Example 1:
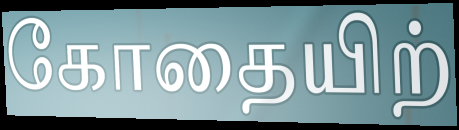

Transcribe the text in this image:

கோதையிற்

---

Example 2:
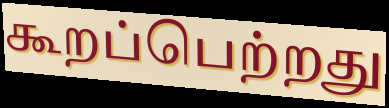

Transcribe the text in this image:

கூறப்பெற்றது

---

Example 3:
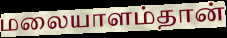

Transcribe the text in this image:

மலையாளம்தான்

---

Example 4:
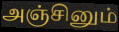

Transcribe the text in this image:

அஞ்சினும்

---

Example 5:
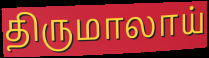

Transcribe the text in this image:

திருமாலாய்